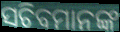
ସଚିବମାନଙ୍କ